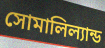
সোমালিল্যান্ড